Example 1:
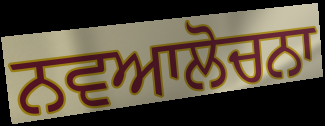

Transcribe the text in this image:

ਨਵਆਲੋਚਨਾ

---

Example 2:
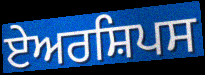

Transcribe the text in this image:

ਏਅਰਸ਼ਿਪਸ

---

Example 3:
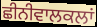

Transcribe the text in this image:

ਛੀਨੀਵਾਲਕਲਾਂ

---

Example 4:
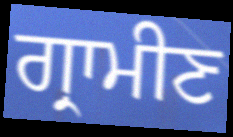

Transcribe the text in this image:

ਗ੍ਰਾਮੀਣ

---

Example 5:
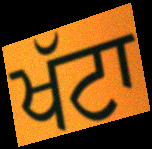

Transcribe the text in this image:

ਖੱਟਾ